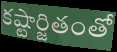
కష్టార్జితంతో